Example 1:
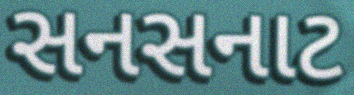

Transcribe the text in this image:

સનસનાટ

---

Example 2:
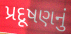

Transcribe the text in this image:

પ્રદૂષણનું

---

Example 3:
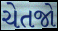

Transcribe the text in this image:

ચેતજો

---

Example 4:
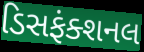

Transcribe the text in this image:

ડિસફંક્શનલ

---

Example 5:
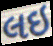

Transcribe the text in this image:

લઇ